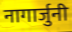
नागार्जुनी